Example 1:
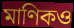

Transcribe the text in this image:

মাণিকও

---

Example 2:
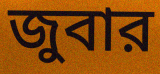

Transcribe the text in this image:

জুবার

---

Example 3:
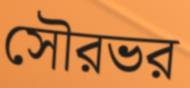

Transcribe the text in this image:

সৌরভর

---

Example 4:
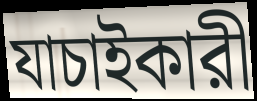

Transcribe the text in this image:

যাচাইকারী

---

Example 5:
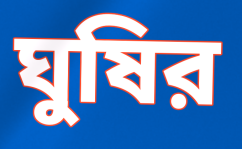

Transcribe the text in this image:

ঘুষির